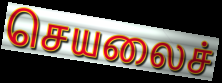
செயலைச்